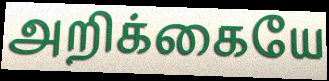
அறிக்கையே